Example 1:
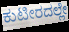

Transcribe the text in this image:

ಕುಟೀರದಲ್ಲೇ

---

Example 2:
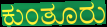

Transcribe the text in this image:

ಕುಂತೂರು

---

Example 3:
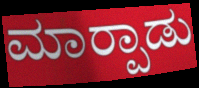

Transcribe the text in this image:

ಮಾರ‍್ಪಾಡು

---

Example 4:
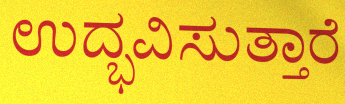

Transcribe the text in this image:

ಉದ್ಭವಿಸುತ್ತಾರೆ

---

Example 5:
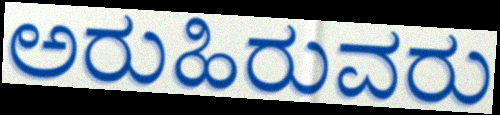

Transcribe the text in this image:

ಅರುಹಿರುವರು